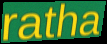
ratha